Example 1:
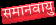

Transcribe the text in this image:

समानवायु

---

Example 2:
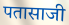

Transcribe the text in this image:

पतासाजी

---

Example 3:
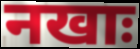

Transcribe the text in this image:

नखाः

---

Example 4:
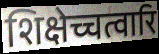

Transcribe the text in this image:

शिक्षेच्चत्वारि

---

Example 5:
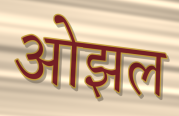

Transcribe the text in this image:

ओझल